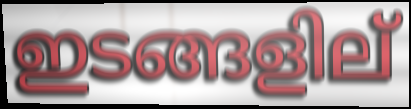
ഇടങ്ങളില്